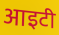
आइटी